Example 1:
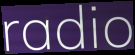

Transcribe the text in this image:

radio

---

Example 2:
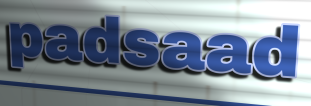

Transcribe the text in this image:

padsaad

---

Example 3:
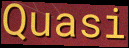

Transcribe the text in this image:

Quasi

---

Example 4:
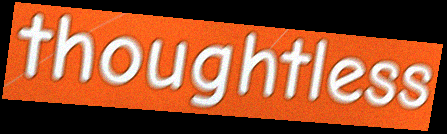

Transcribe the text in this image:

thoughtless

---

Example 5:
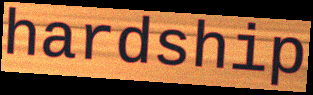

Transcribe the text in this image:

hardship